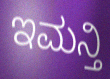
ಇಮನ್ತಿ